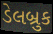
ડેલબ્રુક